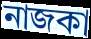
নাজকা